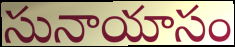
సునాయాసం